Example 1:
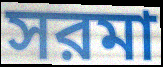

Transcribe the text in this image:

সরমা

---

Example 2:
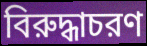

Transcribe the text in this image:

বিরুদ্ধাচরণ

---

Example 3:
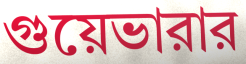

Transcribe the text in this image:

গুয়েভারার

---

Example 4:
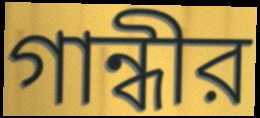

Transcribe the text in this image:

গান্ধীর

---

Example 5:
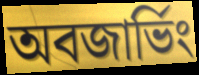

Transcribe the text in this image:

অবজার্ভিং